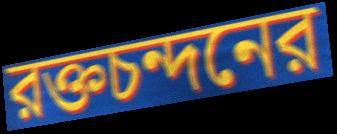
রক্তচন্দনের